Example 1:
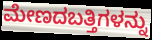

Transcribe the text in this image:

ಮೇಣದಬತ್ತಿಗಳನ್ನು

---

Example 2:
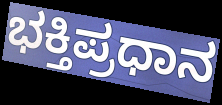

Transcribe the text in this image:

ಭಕ್ತಿಪ್ರಧಾನ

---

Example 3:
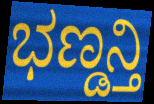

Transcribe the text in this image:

ಭಣ್ಡನ್ತಿ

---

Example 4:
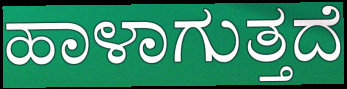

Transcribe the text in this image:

ಹಾಳಾಗುತ್ತದೆ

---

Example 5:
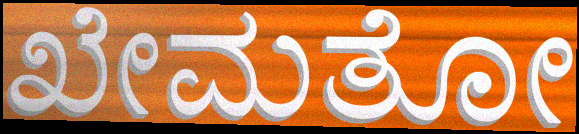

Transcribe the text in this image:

ಖೇಮತೋ